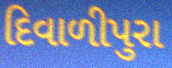
દિવાળીપુરા